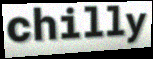
chilly